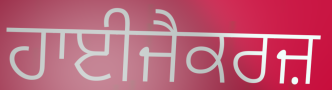
ਹਾਈਜੈਕਰਜ਼